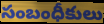
సంబంధీకులు